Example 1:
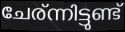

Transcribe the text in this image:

ചേര്ന്നിട്ടുണ്ട്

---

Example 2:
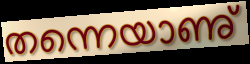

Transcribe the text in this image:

തന്നെയാണു്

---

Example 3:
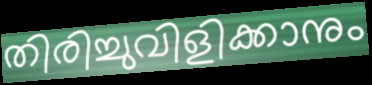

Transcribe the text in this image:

തിരിച്ചുവിളിക്കാനും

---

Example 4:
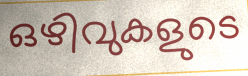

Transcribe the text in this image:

ഒഴിവുകളുടെ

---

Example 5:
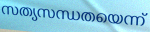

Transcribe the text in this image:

സത്യസന്ധതയെന്ന്